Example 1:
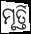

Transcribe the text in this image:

ମୃର୍ତ୍ତି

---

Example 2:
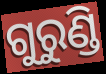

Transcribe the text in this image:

ଗୁରୁଣ୍ଡି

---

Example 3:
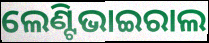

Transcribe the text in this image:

ଲେଣ୍ଟିଭାଇରାଲ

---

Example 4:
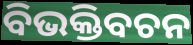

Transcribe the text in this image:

ବିଭକ୍ତିବଚନ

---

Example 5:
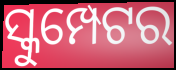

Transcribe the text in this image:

ସ୍କୁମ୍ପେଟର